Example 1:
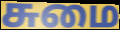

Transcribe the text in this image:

சுமை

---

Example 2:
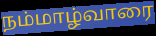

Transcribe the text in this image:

நம்மாழ்வாரை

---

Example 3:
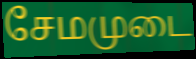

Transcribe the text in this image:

சேமமுடை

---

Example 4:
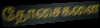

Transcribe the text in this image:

தோசைகளை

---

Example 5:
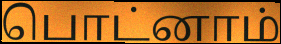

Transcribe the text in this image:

பொட்னாம்